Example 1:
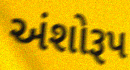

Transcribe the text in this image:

અંશોરૂપ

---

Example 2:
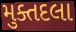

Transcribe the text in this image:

મુક્તદલા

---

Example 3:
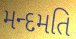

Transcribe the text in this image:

મન્દમતિ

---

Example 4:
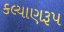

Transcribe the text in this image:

કલ્યાણરૂપ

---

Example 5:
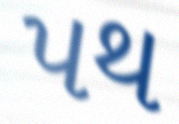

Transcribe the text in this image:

પથ